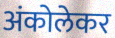
अंकोलेकर